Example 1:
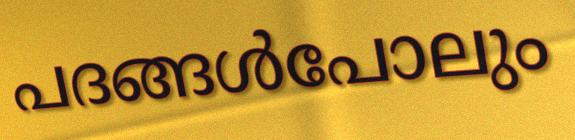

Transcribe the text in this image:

പദങ്ങൾപോലും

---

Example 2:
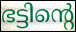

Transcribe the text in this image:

ഭട്ടിന്റെ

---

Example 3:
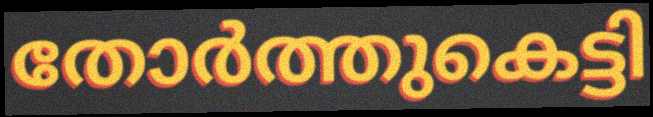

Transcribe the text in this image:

തോർത്തുകെട്ടി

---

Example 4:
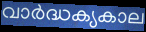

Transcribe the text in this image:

വാർദ്ധക്യകാല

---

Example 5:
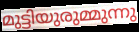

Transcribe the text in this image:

മുട്ടിയുരുമ്മുന്നു